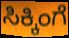
ಸಿಕ್ಕಿಂಗೆ